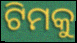
ଟିମକୁ